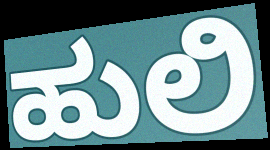
ಹುಲಿ